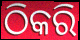
ଠିକରି